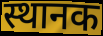
स्थानक